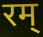
रम्